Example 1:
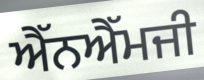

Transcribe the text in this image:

ਐੱਨਐੱਮਜੀ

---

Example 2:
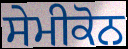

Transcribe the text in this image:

ਸੇਮੀਕੋਨ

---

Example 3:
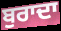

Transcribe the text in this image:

ਬੁਰਾਦਾ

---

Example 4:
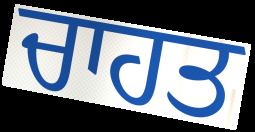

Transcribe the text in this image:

ਚਾਹਤ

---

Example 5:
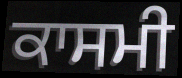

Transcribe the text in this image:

ਕਾਸਮੀ